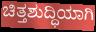
ಚಿತ್ತಶುದ್ಧಿಯಾಗಿ